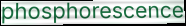
phosphorescence